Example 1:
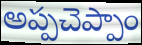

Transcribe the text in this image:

అప్పచెప్పాం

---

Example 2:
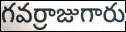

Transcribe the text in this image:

గవర్రాజుగారు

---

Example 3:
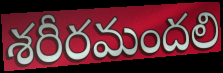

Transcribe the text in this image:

శరీరమందలి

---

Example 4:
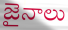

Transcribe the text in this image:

జైనాలు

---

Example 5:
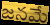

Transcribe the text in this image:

జనమే